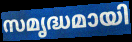
സമൃദ്ധമായി